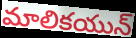
మాలికయున్